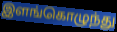
இளங்கொழுந்து